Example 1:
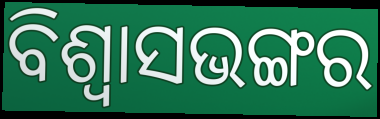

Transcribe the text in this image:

ବିଶ୍ଵାସଭଙ୍ଗର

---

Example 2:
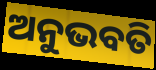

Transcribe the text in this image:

ଅନୁଭବତି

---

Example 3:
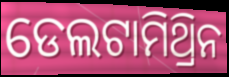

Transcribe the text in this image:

ଡେଲଟାମିଥ୍ରିନ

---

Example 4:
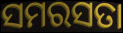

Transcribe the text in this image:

ସମରସତା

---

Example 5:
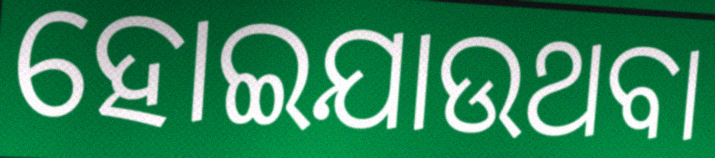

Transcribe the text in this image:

ହୋଇଯାଉଥବା